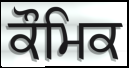
ਕੌਮਿਕ